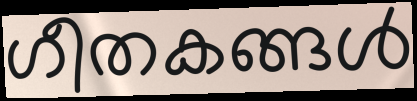
ഗീതകങ്ങൾ